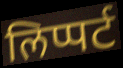
लिप्पर्ट